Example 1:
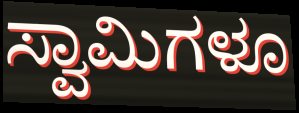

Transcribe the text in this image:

ಸ್ವಾಮಿಗಳೂ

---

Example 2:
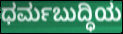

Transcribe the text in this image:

ಧರ್ಮಬುದ್ಧಿಯ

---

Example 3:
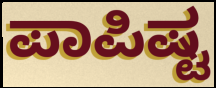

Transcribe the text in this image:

ಪಾಪಿಷ್ಟ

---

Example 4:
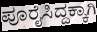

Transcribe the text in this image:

ಪೂರೈಸಿದ್ದಕ್ಕಾಗಿ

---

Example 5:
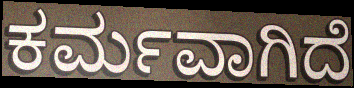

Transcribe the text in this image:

ಕರ್ಮವಾಗಿದೆ